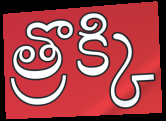
త్రొక్కి